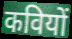
कवियों